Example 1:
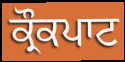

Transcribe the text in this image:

ਕ੍ਰੌਕਪਾਟ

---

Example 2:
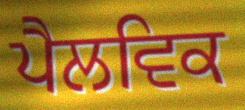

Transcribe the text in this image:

ਪੈਲਵਿਕ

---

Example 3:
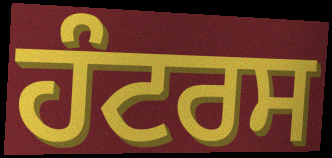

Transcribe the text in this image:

ਹੰਟਰਸ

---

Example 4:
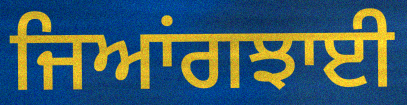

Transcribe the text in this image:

ਜਿਆਂਗਝਾਈ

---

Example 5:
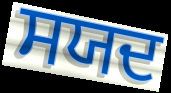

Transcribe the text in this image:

ਸਯਦ